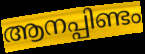
ആനപ്പിണ്ടം